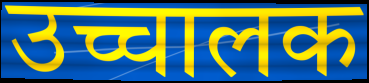
उच्चालक